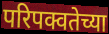
परिपक्वतेच्या